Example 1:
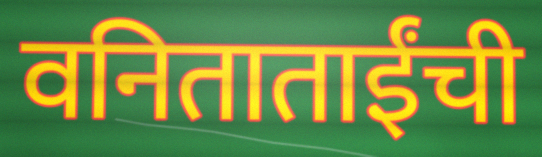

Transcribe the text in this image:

वनिताताईंची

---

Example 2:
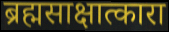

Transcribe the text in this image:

ब्रह्मसाक्षात्कारा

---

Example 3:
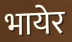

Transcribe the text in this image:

भायेर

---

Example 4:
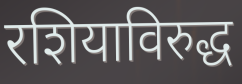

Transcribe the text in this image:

रशियाविरुद्ध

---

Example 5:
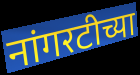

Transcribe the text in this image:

नांगरटीच्या